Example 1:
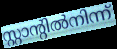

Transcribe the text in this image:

സ്റ്റാന്റിൽനിന്ന്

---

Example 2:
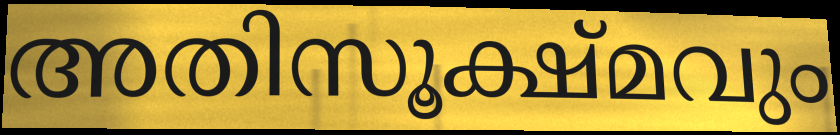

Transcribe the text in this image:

അതിസൂക്ഷ്മവും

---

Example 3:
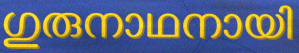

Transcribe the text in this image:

ഗുരുനാഥനായി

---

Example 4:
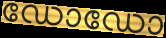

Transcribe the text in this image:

ഡോഡോ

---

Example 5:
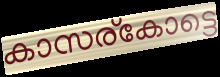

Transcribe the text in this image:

കാസര്കോട്ടെ